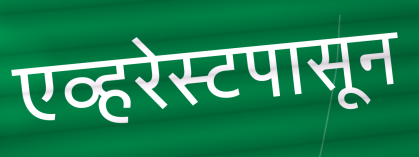
एव्हरेस्टपासून